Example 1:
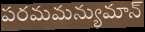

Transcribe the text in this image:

పరమమన్యుమాన్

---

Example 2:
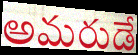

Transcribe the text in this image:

అమరుడే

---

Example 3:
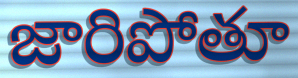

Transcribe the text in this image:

జారిపోతూ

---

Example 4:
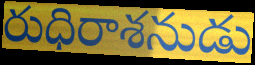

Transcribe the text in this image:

రుధిరాశనుడు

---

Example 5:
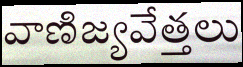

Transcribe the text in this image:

వాణిజ్యవేత్తలు